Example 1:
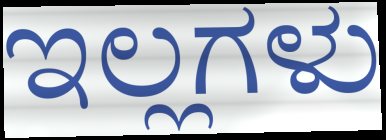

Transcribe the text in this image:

ಇಲ್ಲಗಳು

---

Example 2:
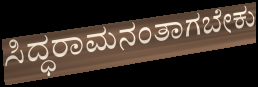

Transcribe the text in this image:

ಸಿದ್ಧರಾಮನಂತಾಗಬೇಕು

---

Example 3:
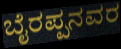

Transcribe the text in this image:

ಬೈರಪ್ಪನವರ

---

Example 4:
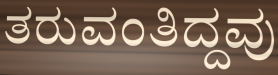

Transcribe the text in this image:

ತರುವಂತಿದ್ದವು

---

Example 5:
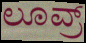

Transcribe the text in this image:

ಲೂವ್ರ್